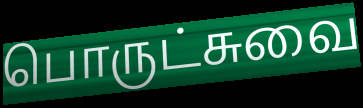
பொருட்சுவை